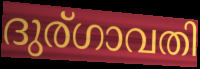
ദുര്ഗാവതി